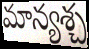
మాన్యశ్చ